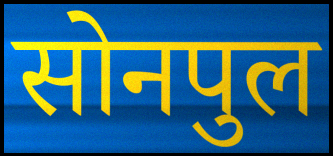
सोनपुल